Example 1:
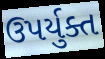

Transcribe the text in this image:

ઉપર્યુક્ત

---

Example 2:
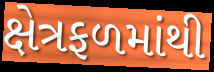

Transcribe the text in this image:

ક્ષેત્રફળમાંથી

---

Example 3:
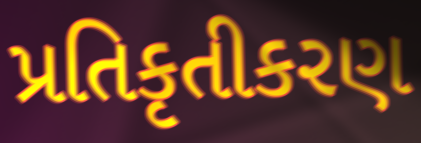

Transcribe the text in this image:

પ્રતિકૃતીકરણ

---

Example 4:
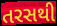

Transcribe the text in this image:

તરસથી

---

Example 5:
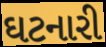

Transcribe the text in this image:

ઘટનારી